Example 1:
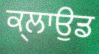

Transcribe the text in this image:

ਕ੍ਲਾਉਡ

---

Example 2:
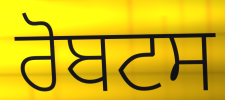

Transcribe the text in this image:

ਰੋਬਟਸ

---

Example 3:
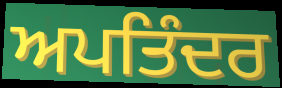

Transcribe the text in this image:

ਅਪਤਿੰਦਰ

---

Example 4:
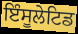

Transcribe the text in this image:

ਇੰਸੂਲੇਟਿਡ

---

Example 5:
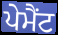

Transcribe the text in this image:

ਪੇਮੈਂਟ